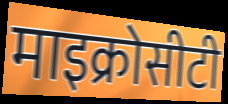
माइक्रोसीटी